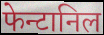
फेन्टानिल